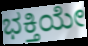
ಭಕ್ತಿಯೇ